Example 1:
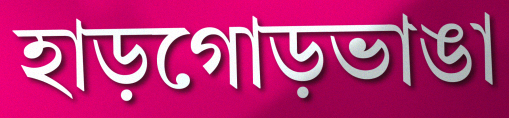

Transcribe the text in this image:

হাড়গোড়ভাঙা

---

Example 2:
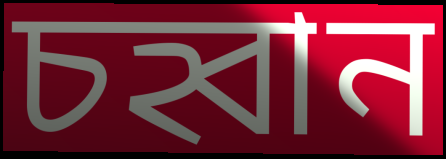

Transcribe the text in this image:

চহ্বান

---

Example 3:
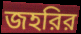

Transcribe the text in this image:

জহরির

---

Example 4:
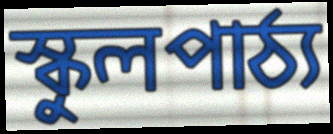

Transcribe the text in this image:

স্কুলপাঠ্য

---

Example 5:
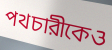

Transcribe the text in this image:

পথচারীকেও